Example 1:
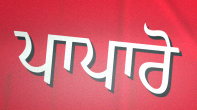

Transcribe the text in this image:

ਪਾਪਾਰੋ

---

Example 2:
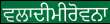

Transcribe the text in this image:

ਵਲਾਦੀਮੀਰੋਵਨਾ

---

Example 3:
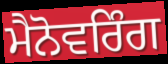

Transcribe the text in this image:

ਮੈਨੋਵਰਿੰਗ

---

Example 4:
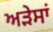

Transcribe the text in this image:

ਅੜੇਸਾਂ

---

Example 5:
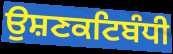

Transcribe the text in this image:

ਉਸ਼ਣਕਟਿਬੰਧੀ